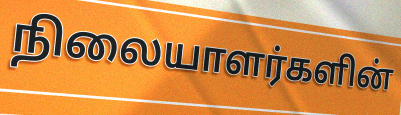
நிலையாளர்களின்